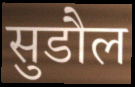
सुडौल